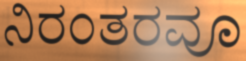
ನಿರಂತರವೂ